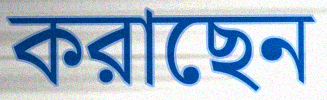
করাছেন